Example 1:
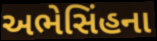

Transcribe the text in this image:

અભેસિંહના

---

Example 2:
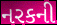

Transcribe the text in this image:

નરકની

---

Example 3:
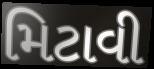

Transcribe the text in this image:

મિટાવી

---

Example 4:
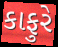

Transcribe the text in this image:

કાફુરે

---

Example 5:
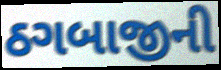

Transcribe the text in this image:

ઠગબાજીની